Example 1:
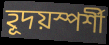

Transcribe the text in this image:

হূদয়স্পর্শী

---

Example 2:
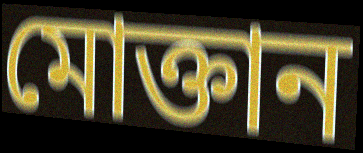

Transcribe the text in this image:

মোক্তান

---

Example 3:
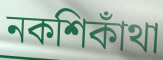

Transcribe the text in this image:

নকশিকাঁথা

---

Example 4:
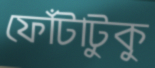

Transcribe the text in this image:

ফোঁটাটুকু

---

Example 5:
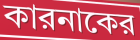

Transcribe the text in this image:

কারনাকের